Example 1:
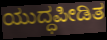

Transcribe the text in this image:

ಯುದ್ಧಪೀಡಿತ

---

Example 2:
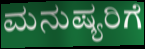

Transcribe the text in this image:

ಮನುಷ್ಯರಿಗೆ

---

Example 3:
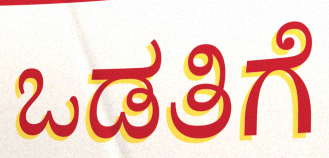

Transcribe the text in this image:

ಒಡತಿಗೆ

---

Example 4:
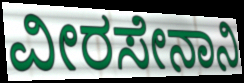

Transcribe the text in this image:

ವೀರಸೇನಾನಿ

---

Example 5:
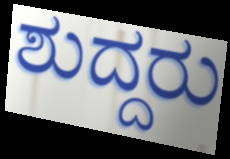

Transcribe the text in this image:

ಶುದ್ದರು